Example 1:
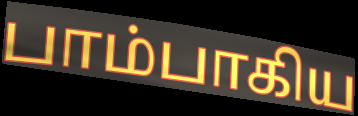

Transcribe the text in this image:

பாம்பாகிய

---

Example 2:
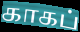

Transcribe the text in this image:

காகப்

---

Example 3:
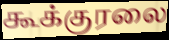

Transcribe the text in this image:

கூக்குரலை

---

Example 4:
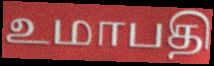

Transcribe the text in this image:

உமாபதி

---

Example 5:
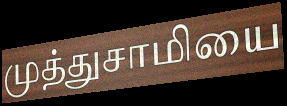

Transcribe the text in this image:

முத்துசாமியை